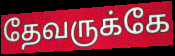
தேவருக்கே